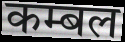
कम्बल